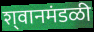
श्वानमंडळी